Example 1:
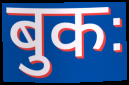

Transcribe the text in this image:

बुकः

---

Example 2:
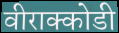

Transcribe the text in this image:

वीराक्कोडी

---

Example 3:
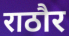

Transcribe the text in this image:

राठौर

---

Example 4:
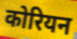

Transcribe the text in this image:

कोरियन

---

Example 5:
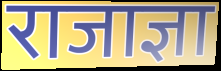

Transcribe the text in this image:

राजाज्ञा